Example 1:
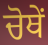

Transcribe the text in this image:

ਚੋਥੇਂ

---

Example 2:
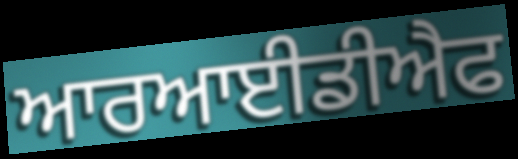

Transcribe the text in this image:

ਆਰਆਈਡੀਐਫ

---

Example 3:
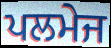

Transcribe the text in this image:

ਪਲਮੇਜ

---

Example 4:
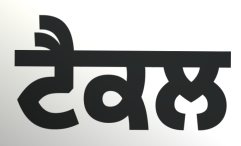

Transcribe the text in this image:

ਟੈਕਲ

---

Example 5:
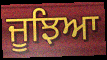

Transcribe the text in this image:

ਜੂਝਿਆ